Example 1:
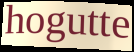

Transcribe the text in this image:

hogutte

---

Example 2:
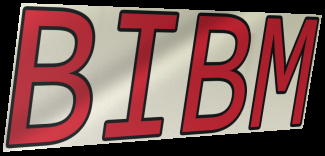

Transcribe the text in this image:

BIBM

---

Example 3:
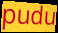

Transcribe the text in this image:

pudu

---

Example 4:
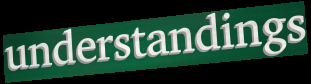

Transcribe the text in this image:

understandings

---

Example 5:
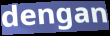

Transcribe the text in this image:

dengan